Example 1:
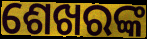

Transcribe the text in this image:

ଶେଖରଙ୍କ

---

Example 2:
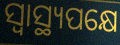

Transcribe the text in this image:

ସ୍ଵାସ୍ଥ୍ୟପକ୍ଷେ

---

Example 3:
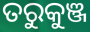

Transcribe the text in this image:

ତରୁକୁଞ୍ଜ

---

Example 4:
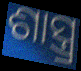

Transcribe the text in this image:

ଶାସ୍ତ୍ର୍ର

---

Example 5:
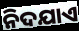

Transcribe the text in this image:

ନିଦଯାଏ